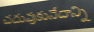
చదువుకునేదాన్ని